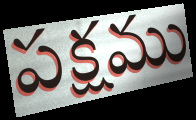
పక్షము